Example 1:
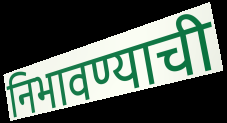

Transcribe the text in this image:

निभावण्याची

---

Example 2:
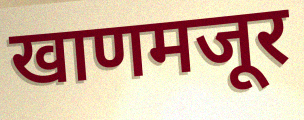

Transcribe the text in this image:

खाणमजूर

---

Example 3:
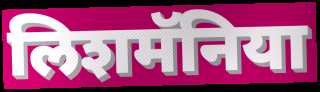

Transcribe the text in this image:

लिशमॅनिया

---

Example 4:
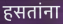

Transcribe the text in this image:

हसतांना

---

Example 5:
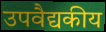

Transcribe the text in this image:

उपवैद्यकीय